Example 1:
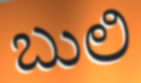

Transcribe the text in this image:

ಬುಲಿ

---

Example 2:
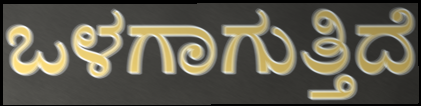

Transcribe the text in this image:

ಒಳಗಾಗುತ್ತಿದೆ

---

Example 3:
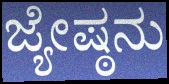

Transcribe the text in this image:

ಜ್ಯೇಷ್ಠನು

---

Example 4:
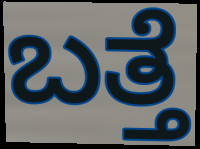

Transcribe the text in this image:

ಬತ್ತೆ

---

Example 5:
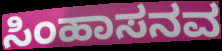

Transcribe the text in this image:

ಸಿಂಹಾಸನವ